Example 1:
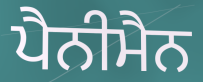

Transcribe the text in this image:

ਪੈਨੀਮੈਨ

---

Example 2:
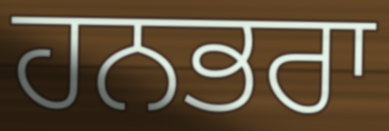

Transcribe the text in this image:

ਹਨਭਰਾ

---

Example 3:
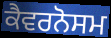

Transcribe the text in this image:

ਕੈਵਰਨੋਸਮ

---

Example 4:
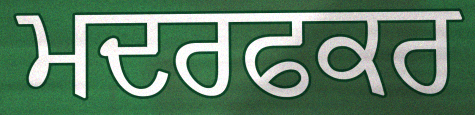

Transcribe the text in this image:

ਮਦਰਫਕਰ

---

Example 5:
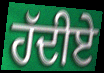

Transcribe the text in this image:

ਹੱਦੀਏ